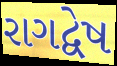
રાગદ્વેષ